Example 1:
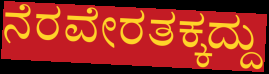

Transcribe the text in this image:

ನೆರವೇರತಕ್ಕದ್ದು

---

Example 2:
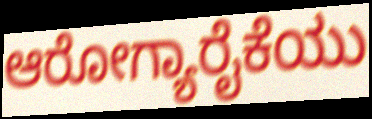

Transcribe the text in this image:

ಆರೋಗ್ಯಾರೈಕೆಯು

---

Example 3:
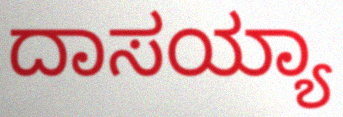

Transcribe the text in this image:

ದಾಸಯ್ಯಾ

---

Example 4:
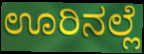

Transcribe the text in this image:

ಊರಿನಲ್ಲೆ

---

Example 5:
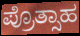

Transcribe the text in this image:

ಪ್ರೊತ್ಸಾಹ